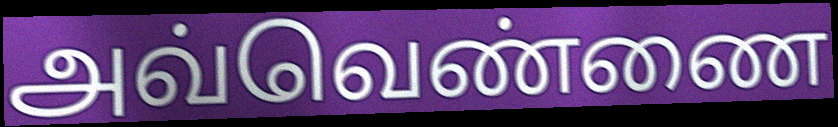
அவ்வெண்ணை